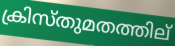
ക്രിസ്തുമതത്തില്